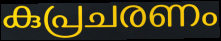
കുപ്രചരണം